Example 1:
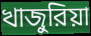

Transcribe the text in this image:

খাজুরিয়া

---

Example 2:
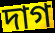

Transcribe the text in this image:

দাগ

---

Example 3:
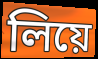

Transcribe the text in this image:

লিয়ে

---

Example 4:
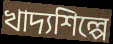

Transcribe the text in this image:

খাদ্যশিল্পে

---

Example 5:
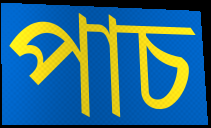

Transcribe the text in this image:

পাচ